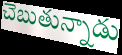
చెబుతున్నాడు